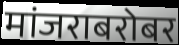
मांजराबरोबर